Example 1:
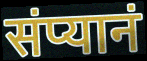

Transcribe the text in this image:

संप्यानं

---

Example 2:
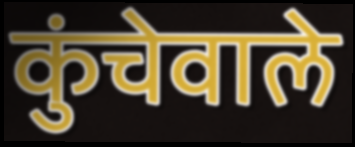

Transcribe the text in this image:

कुंचेवाले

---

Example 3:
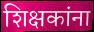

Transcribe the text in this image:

शिक्षकांना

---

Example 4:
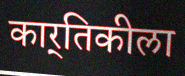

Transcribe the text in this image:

कार्तिकीला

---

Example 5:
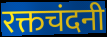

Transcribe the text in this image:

रक्तचंदनी